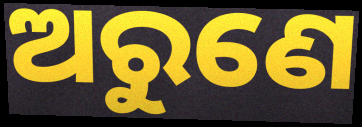
ଅରୁଣେ